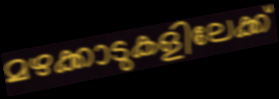
മഴക്കാടുകളിലേക്ക്